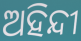
ଅହିନ୍ଦୀ